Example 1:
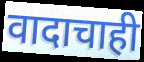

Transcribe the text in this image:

वादाचाही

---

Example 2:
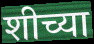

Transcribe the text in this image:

शीच्या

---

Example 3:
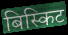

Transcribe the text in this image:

बिस्किट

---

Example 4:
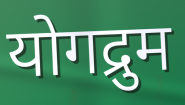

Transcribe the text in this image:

योगद्रुम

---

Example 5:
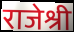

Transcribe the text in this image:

राजेश्री